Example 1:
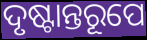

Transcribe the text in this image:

ଦୃଷ୍ଟାନ୍ତରୂପେ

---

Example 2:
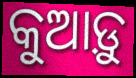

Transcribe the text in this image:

କୁଆଡ଼ୁ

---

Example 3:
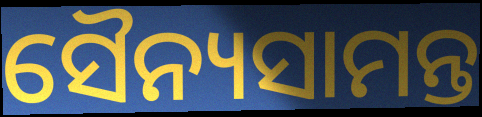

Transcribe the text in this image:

ସୈନ୍ୟସାମନ୍ତ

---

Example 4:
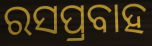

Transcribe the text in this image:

ରସପ୍ରବାହ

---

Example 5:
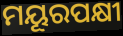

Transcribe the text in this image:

ମୟୂରପକ୍ଷୀ